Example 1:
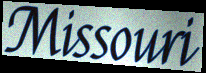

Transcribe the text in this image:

Missouri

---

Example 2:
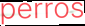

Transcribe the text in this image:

perros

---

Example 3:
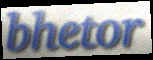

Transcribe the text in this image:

bhetor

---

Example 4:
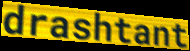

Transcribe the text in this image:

drashtant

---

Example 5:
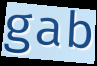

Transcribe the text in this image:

gab